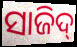
ସାଜିଦ୍